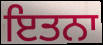
ਇਤਨਾ